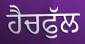
ਹੈਚਫੁੱਲ